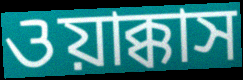
ওয়াক্কাস